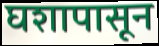
घशापासून